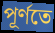
পূর্ণতে